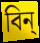
বিন্